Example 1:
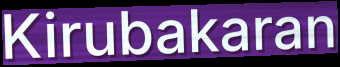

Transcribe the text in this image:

Kirubakaran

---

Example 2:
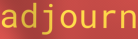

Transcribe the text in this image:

adjourn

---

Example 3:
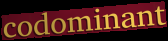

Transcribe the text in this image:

codominant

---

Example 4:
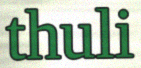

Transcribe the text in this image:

thuli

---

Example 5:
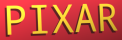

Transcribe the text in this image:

PIXAR